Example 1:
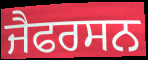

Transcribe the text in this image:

ਜੈਫਰਸਨ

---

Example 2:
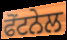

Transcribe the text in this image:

ਫੋਂਟਨੇਲ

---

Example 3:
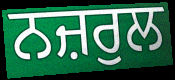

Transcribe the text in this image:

ਨਜ਼ਰੁਲ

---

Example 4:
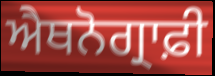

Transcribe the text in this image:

ਐਥਨੋਗ੍ਰਾਫ਼ੀ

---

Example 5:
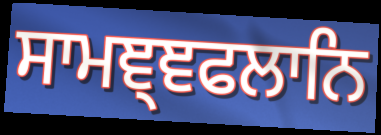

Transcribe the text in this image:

ਸਾਮਞ੍ਞਫਲਾਨਿ